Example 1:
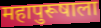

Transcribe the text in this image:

महापुरूषाला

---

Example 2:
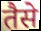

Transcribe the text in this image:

तैसे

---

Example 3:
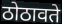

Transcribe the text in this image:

ठोठावते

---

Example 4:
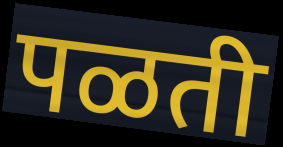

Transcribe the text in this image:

पळती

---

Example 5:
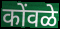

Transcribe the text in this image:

कोंवळे